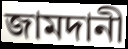
জামদানী